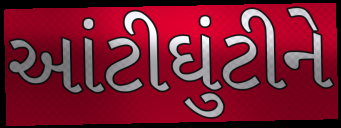
આંટીઘુંટીને